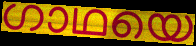
ഗാഥയെ